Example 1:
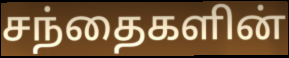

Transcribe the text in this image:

சந்தைகளின்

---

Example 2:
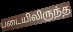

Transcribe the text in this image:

படையிலிருந்த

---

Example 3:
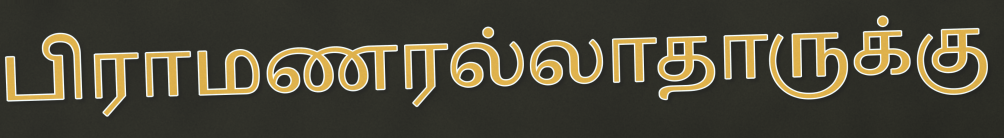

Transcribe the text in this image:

பிராமணரல்லாதாருக்கு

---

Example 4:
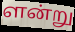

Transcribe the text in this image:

ளன்று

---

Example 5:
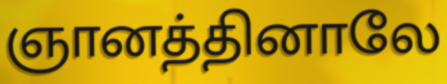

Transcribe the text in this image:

ஞானத்தினாலே